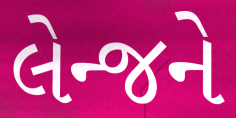
લેન્જને